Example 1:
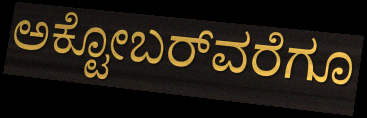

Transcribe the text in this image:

ಅಕ್ಟೋಬರ್‌ವರೆಗೂ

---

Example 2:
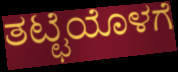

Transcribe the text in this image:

ತಟ್ಟೆಯೊಳಗೆ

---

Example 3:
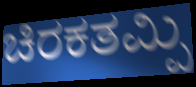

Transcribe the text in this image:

ಚಿರಕತಮ್ಪಿ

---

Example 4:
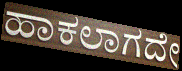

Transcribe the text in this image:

ಹಾಕಲಾಗದೇ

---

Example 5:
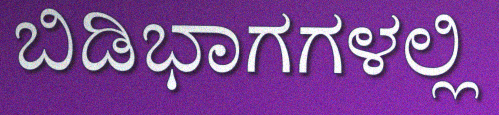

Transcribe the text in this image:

ಬಿಡಿಭಾಗಗಳಲ್ಲಿ